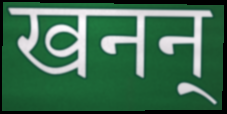
खनन्